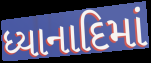
ધ્યાનાદિમાં